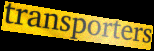
transporters